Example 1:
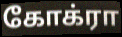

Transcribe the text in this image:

கோக்ரா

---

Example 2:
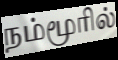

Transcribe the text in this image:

நம்மூரில்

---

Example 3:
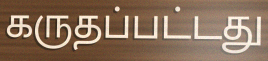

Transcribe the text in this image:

கருதப்பட்டது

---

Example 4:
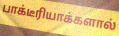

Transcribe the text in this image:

பாக்டீரியாக்களால்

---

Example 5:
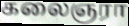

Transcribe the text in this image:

கலைஞரா